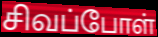
சிவப்போள்